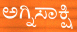
ಅಗ್ನಿಸಾಕ್ಷಿ